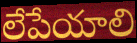
లేపేయాలి